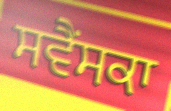
ਸਵੈਂਸਕਾ